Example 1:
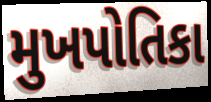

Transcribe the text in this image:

મુખપોતિકા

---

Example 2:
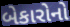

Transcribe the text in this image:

બેકારોનો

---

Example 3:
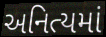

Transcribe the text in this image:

અનિત્યમાં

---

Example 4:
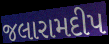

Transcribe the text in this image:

જલારામદીપ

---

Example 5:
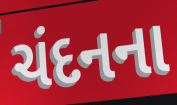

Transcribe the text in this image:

ચંદનના